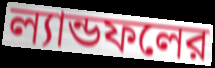
ল্যান্ডফলের